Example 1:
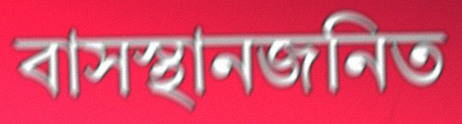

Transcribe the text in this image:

বাসস্থানজনিত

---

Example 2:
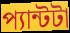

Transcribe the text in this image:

প্যান্টটা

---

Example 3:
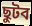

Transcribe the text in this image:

ছুটব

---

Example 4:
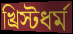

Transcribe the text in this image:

খ্রিস্টধর্ম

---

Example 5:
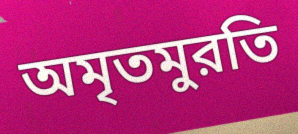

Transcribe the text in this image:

অমৃতমুরতি